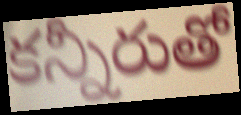
కన్నీరుతో